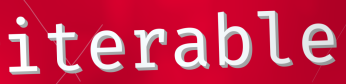
iterable